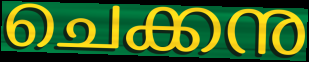
ചെക്കനു